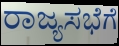
ರಾಜ್ಯಸಭೆಗೆ